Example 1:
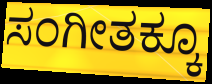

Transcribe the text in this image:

ಸಂಗೀತಕ್ಕೂ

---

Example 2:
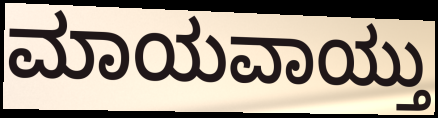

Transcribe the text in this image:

ಮಾಯವಾಯ್ತು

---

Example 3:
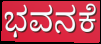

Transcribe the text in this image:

ಭವನಕೆ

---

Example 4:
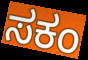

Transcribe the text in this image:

ಸಕಂ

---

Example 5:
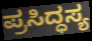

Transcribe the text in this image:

ಪ್ರಸಿದ್ಧಸ್ಯ